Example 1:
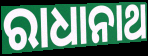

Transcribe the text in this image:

ରାଧାନାଥ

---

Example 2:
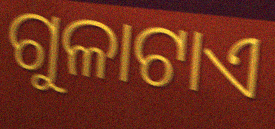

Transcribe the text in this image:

ଗୁଳାଟାଏ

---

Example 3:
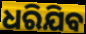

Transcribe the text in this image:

ଧରିଯିବ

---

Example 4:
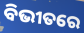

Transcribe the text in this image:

ବିଭୀତରେ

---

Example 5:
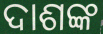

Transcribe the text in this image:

ଦାଶଙ୍କ